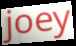
joey